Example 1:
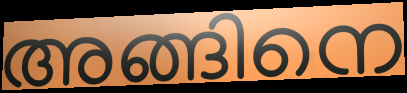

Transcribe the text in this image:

അങ്ങിനെ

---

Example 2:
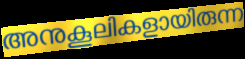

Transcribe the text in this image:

അനുകൂലികളായിരുന്ന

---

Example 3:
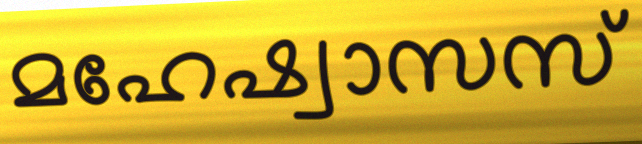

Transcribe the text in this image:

മഹേഷ്വാസസ്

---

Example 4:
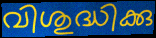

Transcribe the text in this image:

വിശുദ്ധിക്കു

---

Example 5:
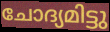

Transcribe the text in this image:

ചോദ്യമിട്ടു